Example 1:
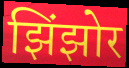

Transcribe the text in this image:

झिंझोर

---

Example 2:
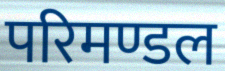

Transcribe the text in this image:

परिमण्डल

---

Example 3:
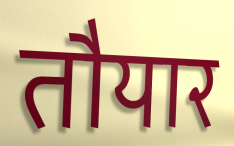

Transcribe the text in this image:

तौयार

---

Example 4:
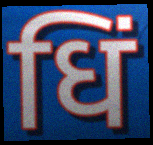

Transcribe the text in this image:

धिं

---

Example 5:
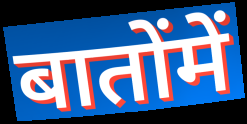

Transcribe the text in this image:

बातोंमें